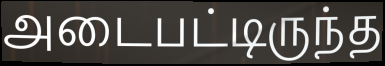
அடைபட்டிருந்த